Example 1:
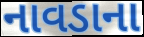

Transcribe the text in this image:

નાવડાના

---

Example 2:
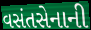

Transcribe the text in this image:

વસંતસેનાની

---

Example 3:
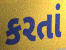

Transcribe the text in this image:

કરતાં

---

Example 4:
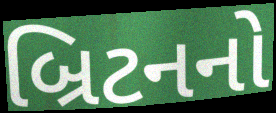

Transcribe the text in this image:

બ્રિટનનો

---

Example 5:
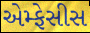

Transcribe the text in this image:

એમ્ફેસીસ